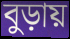
বুড়ায়